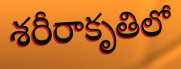
శరీరాకృతిలో